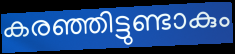
കരഞ്ഞിട്ടുണ്ടാകും